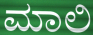
ಮಾಲಿ